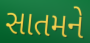
સાતમને